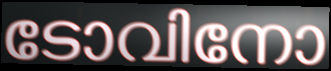
ടോവിനോ